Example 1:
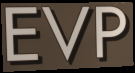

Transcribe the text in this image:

EVP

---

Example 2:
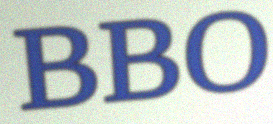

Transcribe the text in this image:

BBO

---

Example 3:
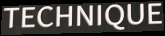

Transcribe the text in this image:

TECHNIQUE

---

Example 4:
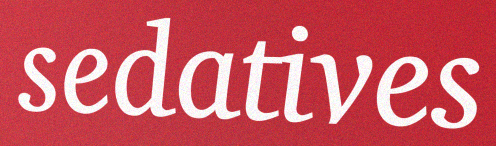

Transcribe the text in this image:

sedatives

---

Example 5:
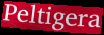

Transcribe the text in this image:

Peltigera